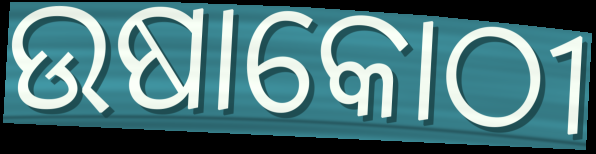
ଉଷାକୋଠୀ